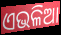
ଏଭଳିଆ